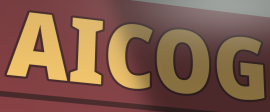
AICOG